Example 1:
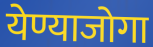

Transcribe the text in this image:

येण्याजोगा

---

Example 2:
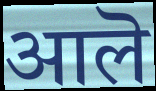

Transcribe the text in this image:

आलॆ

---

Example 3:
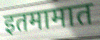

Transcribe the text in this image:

इतमामात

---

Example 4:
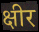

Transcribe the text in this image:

क्षीर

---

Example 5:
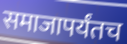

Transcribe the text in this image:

समाजापर्यंतच